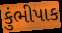
કુંભીપાક